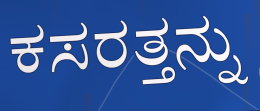
ಕಸರತ್ತನ್ನು